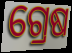
ଗ୍ରେଷ